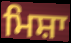
ਮਿਸ਼ਾ